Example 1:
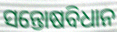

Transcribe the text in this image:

ସନ୍ତୋଷବିଧାନ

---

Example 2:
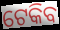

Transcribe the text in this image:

ଟେକିବ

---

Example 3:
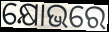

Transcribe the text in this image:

କ୍ଷୋଭରେ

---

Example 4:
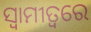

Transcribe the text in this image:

ସ୍ୱାମୀତ୍ୱରେ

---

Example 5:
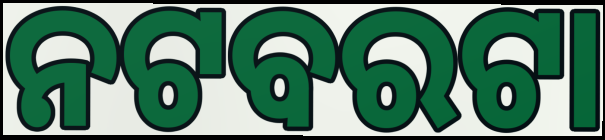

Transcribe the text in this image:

ନଟବରଟା